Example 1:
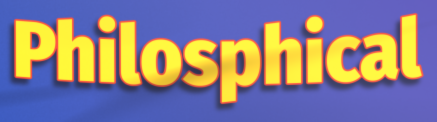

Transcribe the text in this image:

Philosphical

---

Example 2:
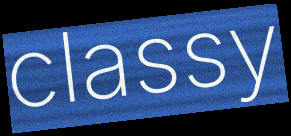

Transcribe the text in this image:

classy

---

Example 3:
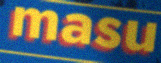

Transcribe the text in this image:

masu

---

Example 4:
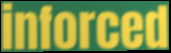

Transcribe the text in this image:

inforced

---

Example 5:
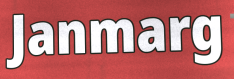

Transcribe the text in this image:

Janmarg